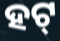
ହଟ୍